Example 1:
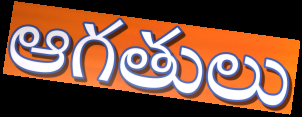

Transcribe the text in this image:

ఆగతులు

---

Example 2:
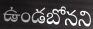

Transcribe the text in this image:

ఉండబోనని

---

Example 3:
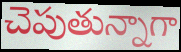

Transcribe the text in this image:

చెపుతున్నాగా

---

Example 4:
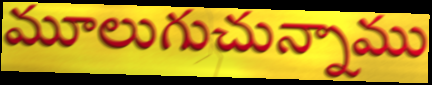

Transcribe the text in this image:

మూలుగుచున్నాము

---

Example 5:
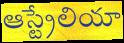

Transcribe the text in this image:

ఆస్ట్రేలియా